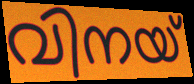
വിനയ്